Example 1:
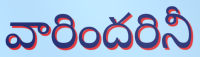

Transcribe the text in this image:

వారిందరినీ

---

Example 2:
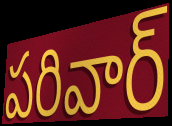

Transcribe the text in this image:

పరివార్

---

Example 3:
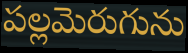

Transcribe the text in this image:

పల్లమెరుగును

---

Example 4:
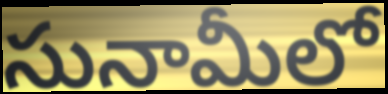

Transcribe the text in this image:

సునామీలో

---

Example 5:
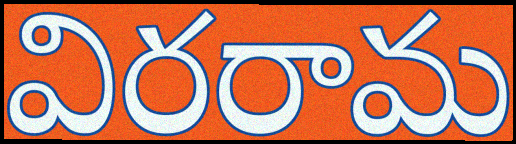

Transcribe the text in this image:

విరరామ